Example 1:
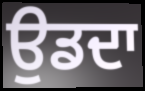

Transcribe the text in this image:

ਉਡਦਾ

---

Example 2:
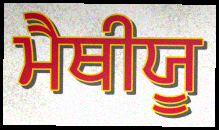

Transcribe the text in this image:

ਮੈਥੀਯੂ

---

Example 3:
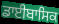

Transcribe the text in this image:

ਡਾਈਬਾਸਿਕ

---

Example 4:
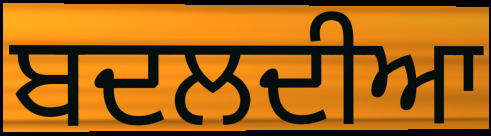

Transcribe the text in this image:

ਬਦਲਦੀਆ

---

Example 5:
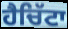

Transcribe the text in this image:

ਹੈਚਿੱਟਾ